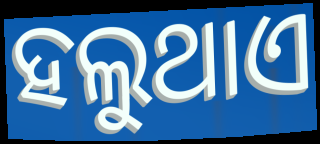
ହଲୁଥାଏ